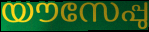
യൗസേപ്പു